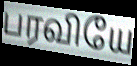
பரவியே